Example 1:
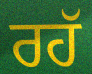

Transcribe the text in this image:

ਰਹੱ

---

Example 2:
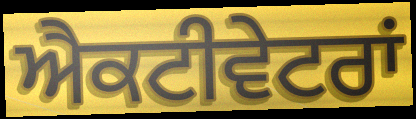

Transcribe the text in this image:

ਐਕਟੀਵੇਟਰਾਂ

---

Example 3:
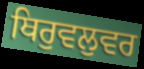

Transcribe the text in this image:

ਥਿਰੁਵਲੁਵਰ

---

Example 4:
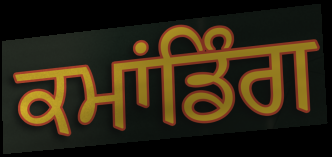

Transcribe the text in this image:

ਕਮਾਂਡਿੰਗ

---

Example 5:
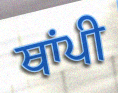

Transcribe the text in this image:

ਥਾਂਪੀ